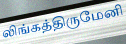
லிங்கத்திருமேனி